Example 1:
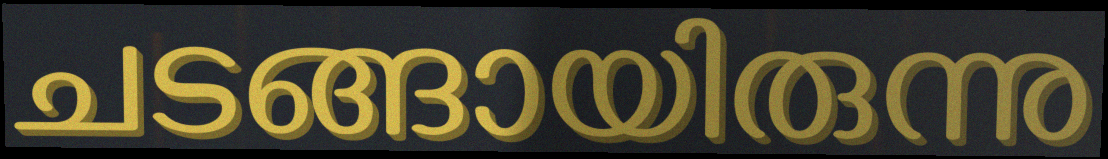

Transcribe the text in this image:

ചടങ്ങായിരുന്നു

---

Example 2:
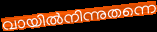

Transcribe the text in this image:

വായിൽനിന്നുതന്നെ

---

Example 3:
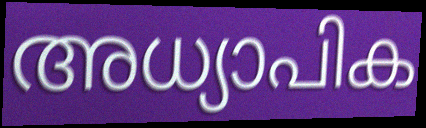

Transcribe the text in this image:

അധ്യാപിക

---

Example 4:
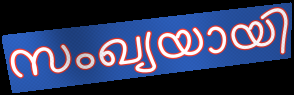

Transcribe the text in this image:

സംഖ്യയായി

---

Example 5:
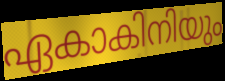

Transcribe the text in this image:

ഏകാകിനിയും